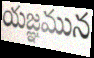
యజ్ఞమున